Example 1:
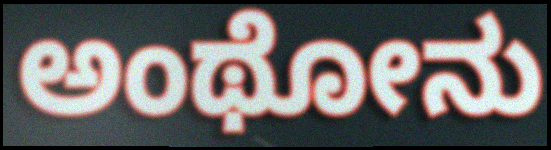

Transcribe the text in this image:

ಅಂಥೋನು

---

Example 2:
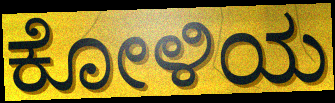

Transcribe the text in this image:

ಕೋಳಿಯ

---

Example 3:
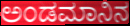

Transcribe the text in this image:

ಅಂಡಮಾನಿನ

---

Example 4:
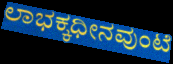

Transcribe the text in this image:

ಲಾಭಕ್ಕಧೀನವುಂಟೆ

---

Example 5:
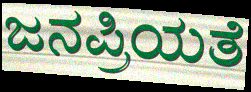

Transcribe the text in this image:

ಜನಪ್ರಿಯತೆ